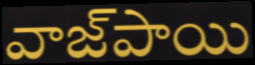
వాజ్‌పాయి